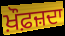
ਖ਼ੌਫ਼ਜ਼ਦਾ